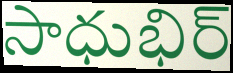
సాధుభిర్